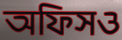
অফিসও